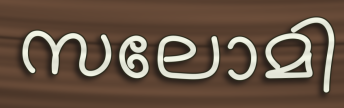
സലോമി